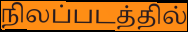
நிலப்படத்தில்